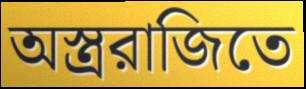
অস্ত্ররাজিতে